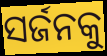
ସର୍ଜନକୁ